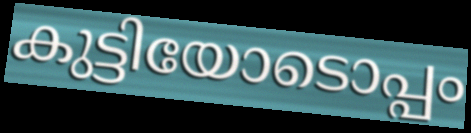
കുട്ടിയോടൊപ്പം